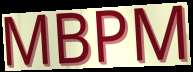
MBPM